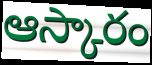
ఆస్కారం